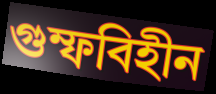
গুম্ফবিহীন